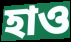
হাও